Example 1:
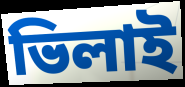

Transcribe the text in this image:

ভিলাই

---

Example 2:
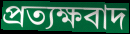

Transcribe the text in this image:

প্রত্যক্ষবাদ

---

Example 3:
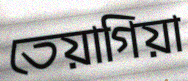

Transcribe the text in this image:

তেয়াগিয়া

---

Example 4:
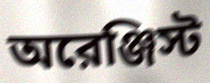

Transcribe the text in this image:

অরেঞ্জিস্ট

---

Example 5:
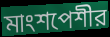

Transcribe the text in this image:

মাংশপেশীর